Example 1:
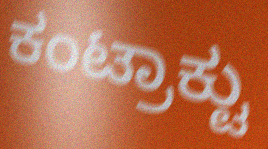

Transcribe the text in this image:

ಕಂಟ್ರಾಕ್ಟು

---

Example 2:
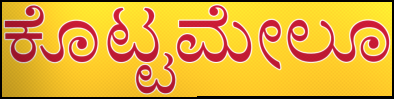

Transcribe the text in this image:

ಕೊಟ್ಟಮೇಲೂ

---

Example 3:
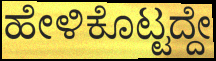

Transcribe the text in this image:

ಹೇಳಿಕೊಟ್ಟದ್ದೇ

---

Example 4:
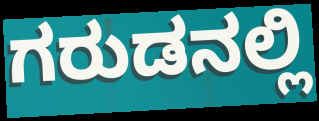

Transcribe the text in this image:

ಗರುಡನಲ್ಲಿ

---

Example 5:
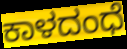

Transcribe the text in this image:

ಕಾಳದಂಧೆ